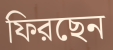
ফিরছেন